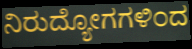
ನಿರುದ್ಯೋಗಗಳಿಂದ